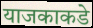
याजकाकडे